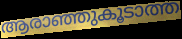
ആരാഞ്ഞുകൂടാത്ത